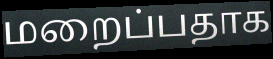
மறைப்பதாக